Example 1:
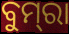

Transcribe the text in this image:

ବୁମ୍‌ରା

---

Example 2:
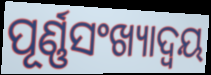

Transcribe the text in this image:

ପୂର୍ଣ୍ଣସଂଖ୍ୟାଦ୍ଵୟ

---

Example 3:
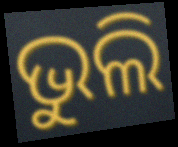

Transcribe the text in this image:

ଭୁଲି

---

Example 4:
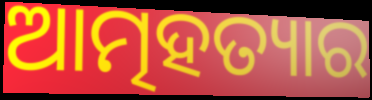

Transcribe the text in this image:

ଆତ୍ମହତ୍ୟାର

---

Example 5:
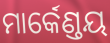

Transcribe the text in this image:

ମାର୍କେଣ୍ଡୟ